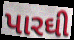
પારઘી